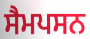
ਸੈਮਪਸਨ